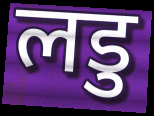
लडु